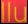
llu